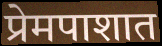
प्रेमपाशात